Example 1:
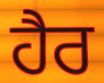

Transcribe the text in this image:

ਹੈਰ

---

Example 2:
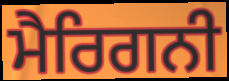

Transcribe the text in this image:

ਮੈਰਿਗਨੀ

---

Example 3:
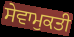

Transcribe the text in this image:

ਸੇਵਾਮੁਕਤੀ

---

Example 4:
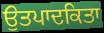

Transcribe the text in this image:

ਉਤਪਾਦਕਿਤਾ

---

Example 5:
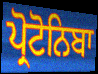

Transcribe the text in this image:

ਪ੍ਰੋਟੋਨਿਬਾ